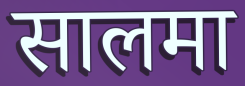
सालमा